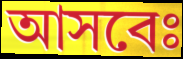
আসবেঃ